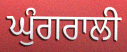
ਘੁੰਗਰਾਲੀ